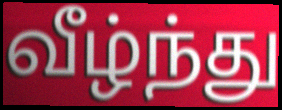
வீழ்ந்து